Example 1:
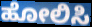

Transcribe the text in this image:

ಹೋಲಿಸಿ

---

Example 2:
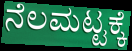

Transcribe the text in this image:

ನೆಲಮಟ್ಟಕ್ಕೆ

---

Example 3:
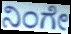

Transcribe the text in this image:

ನಿಂಗೇ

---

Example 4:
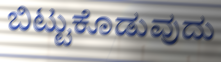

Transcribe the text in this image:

ಬಿಟ್ಟುಕೊಡುವುದು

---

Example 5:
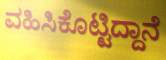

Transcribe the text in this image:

ವಹಿಸಿಕೊಟ್ಟಿದ್ದಾನೆ